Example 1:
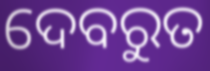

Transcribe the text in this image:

ଦେବରୁତ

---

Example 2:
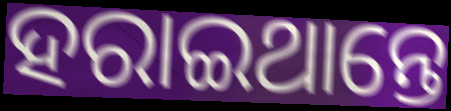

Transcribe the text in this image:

ହରାଇଥାନ୍ତେ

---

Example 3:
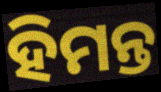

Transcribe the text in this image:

ହିମନ୍ତ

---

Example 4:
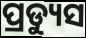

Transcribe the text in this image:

ପ୍ରଡ୍ୟୁସ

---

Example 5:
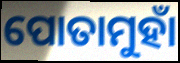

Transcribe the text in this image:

ପୋତାମୁହାଁ